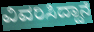
ವಿವರಿಸಿದ್ದಾನೆ